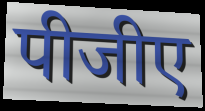
पीजीए